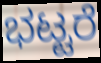
ಭಟ್ಟರೆ